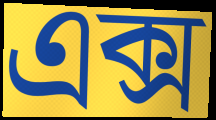
এক্স